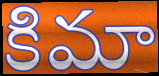
కిమా